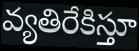
వ్యతిరేకిస్తూ